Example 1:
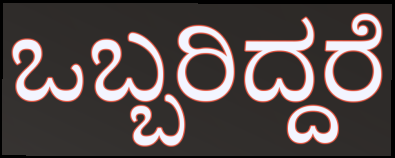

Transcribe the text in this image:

ಒಬ್ಬರಿದ್ದರೆ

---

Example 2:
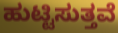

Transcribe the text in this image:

ಹುಟ್ಟಿಸುತ್ತವೆ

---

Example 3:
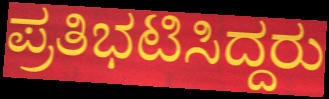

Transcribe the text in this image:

ಪ್ರತಿಭಟಿಸಿದ್ದರು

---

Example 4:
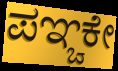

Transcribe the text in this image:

ಪಞ್ಚಕೇ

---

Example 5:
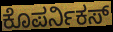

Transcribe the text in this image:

ಕೊಪರ್ನಿಕಸ್